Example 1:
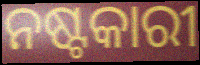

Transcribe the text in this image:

ନଷ୍ଟକାରୀ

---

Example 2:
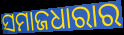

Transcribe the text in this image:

ସମାଜଧାରାର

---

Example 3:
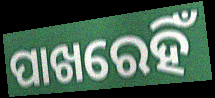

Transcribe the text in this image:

ପାଖରେହିଁ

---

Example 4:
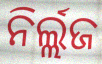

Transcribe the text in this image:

ନିର୍ଲ୍ଲଜ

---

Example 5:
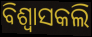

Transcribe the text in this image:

ବିଶ୍ଵାସକଲି